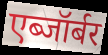
एब्जॉर्बर